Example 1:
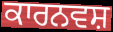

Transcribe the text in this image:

ਕਾਰਨਵਸ਼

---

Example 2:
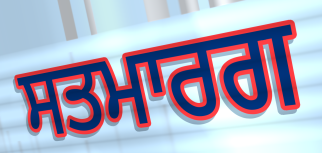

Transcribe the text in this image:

ਸਤਮਾਰਗ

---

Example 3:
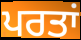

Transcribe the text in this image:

ਪਰਤਾਂ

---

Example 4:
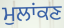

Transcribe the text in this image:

ਮੁਲਾਂਕਣ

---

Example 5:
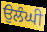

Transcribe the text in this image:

ਉਲੰਘੀ